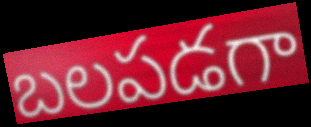
బలపడగా